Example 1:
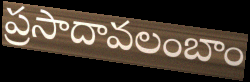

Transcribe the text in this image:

ప్రసాదావలంబాం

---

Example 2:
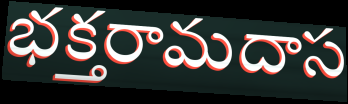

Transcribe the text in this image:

భక్తరామదాస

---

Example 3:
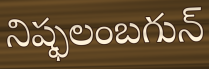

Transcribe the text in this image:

నిష్ఫలంబగున్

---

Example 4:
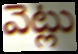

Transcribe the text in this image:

వెట్లు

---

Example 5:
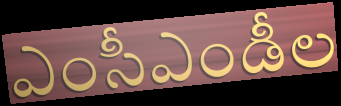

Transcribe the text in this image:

ఎంసీఎండీల